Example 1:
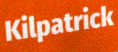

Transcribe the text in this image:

Kilpatrick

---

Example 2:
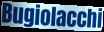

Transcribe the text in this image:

Bugiolacchi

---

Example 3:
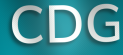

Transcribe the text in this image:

CDG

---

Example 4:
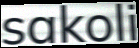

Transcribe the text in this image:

sakoli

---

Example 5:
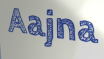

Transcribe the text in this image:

Aajna